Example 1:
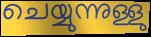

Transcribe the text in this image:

ചെയ്യുന്നുള്ളു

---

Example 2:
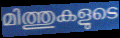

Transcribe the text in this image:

മിത്തുകളുടെ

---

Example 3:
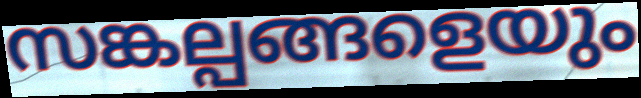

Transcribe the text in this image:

സങ്കല്പങ്ങളെയും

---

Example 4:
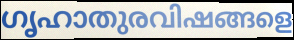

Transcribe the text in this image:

ഗൃഹാതുരവിഷങ്ങളെ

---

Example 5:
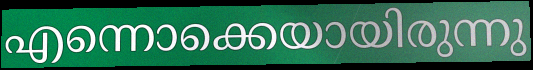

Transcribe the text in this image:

എന്നൊക്കെയായിരുന്നു